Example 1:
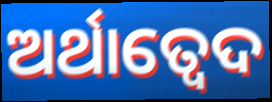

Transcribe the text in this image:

ଅର୍ଥାତ୍ବେଦ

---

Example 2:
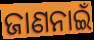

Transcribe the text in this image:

ଜାଣନାଇଁ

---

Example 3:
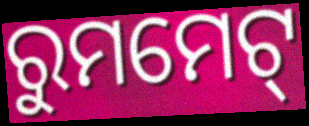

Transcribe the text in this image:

ରୁମମେଟ୍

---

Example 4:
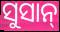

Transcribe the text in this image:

ସୁସାନ୍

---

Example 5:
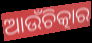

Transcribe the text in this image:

ଆଉଁଚିତ୍କାର